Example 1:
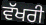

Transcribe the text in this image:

ਵੱਖਰੀ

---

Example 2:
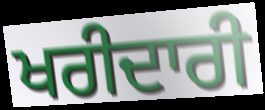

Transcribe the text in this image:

ਖਰੀਦਾਰੀ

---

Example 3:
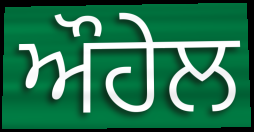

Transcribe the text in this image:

ਔਹੇਲ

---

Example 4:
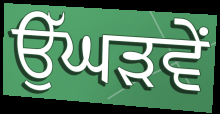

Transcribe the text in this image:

ਉੱਘੜਵੇਂ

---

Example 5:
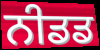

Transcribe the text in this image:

ਨੀਡਡ